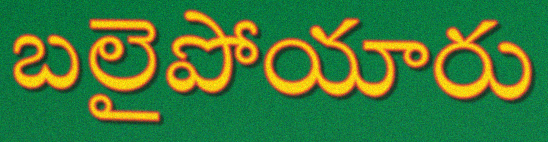
బలైపోయారు